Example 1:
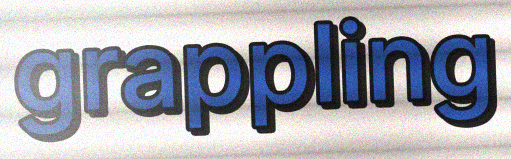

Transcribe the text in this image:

grappling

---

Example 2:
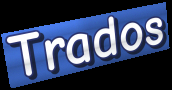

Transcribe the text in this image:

Trados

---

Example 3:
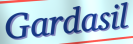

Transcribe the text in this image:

Gardasil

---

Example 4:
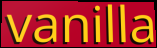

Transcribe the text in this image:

vanilla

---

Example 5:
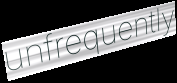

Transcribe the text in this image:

unfrequently